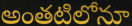
అంతటిలోనూ